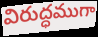
విరుద్ధముగా